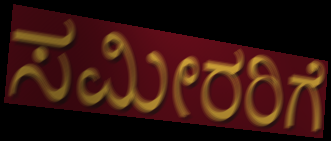
ಸಮೀರರಿಗೆ